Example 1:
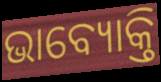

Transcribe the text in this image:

ଭାବ୍ୟୋକ୍ତି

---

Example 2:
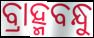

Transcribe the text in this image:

ବ୍ରାହ୍ମବନ୍ଧୁ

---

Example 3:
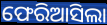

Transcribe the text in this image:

ଫେରିଆସିଲା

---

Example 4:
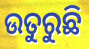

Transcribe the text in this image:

ଉତୁରୁଛି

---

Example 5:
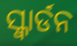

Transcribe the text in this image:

ସ୍କ୍ବାର୍ଡନ